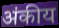
अंकीय